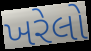
ખરેલો